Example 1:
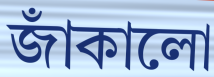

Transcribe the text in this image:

জাঁকালো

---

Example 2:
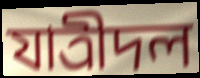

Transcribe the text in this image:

যাত্রীদল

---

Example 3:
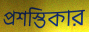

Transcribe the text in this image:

প্রশস্তিকার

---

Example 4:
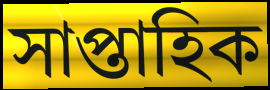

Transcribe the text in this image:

সাপ্তাহিক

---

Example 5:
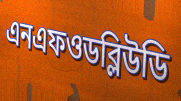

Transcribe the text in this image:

এনএফওডব্লিউডি